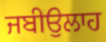
ਜਬੀਉਲਾਹ